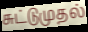
சுட்டுமுதல்